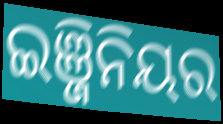
ଇଞ୍ଜିନିୟର